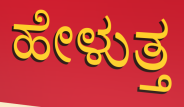
ಹೇಳುತ್ತ